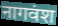
नागवंश